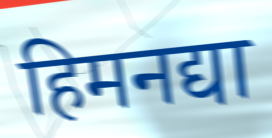
हिमनद्या